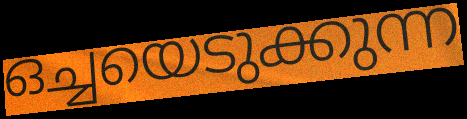
ഒച്ചയെടുക്കുന്ന